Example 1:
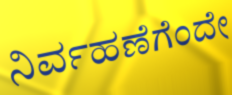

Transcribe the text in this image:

ನಿರ್ವಹಣೆಗೆಂದೇ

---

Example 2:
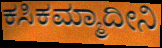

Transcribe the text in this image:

ಕಸಿಕಮ್ಮಾದೀನಿ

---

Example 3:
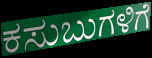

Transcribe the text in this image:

ಕಸುಬುಗಳಿಗೆ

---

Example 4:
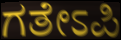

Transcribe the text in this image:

ಗತೇಽಪಿ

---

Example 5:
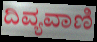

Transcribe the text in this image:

ದಿವ್ಯವಾಣಿ